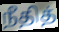
நீதித்